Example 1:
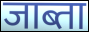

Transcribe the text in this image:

जाब्ता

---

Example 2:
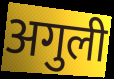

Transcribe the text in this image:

अगुली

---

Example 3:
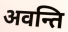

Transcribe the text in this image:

अवन्ति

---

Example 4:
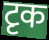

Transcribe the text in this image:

टृक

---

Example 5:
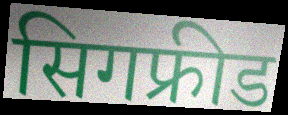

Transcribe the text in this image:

सिगफ्रीड